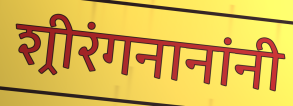
श्रीरंगनानांनी